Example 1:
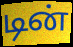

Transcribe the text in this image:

டின்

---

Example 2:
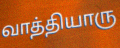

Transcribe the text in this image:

வாத்தியாரு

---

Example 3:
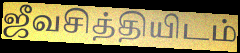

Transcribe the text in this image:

ஜீவசித்தியிடம்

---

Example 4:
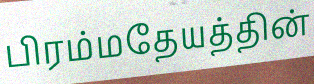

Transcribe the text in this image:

பிரம்மதேயத்தின்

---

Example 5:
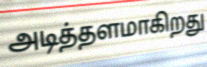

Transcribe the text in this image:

அடித்தளமாகிறது